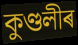
কুণ্ডলীৰ